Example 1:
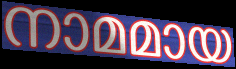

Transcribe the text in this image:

നാമമായ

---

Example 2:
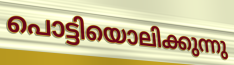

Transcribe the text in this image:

പൊട്ടിയൊലിക്കുന്നു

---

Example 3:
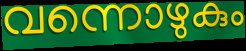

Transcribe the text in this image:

വന്നൊഴുകും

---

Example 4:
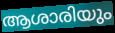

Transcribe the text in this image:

ആശാരിയും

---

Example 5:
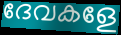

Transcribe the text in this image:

ദേവകളേ